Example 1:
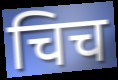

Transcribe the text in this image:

चिच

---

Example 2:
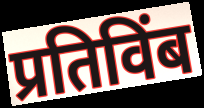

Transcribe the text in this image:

प्रतिविंब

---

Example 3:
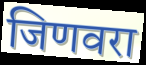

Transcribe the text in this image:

जिणवरा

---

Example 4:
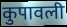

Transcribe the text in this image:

कुपावली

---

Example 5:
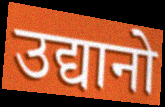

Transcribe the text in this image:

उद्यानो